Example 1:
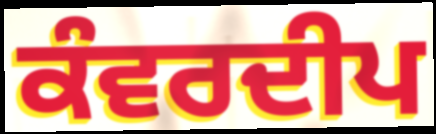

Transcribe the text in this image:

ਕੰਵਰਦੀਪ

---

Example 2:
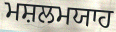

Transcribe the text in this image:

ਮਸ਼ਲਮਯਾਹ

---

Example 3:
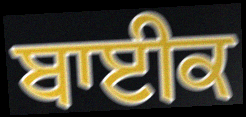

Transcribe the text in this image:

ਬਾਈਕ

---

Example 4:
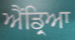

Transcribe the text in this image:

ਐਂਡ੍ਰਿਆ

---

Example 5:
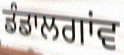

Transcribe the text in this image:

ਡੰਡਾਲਗਾਂਵ